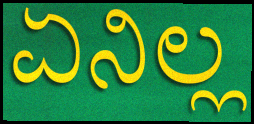
ಏನಿಲ್ಲ